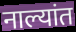
नाल्यांत